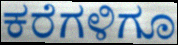
ಕರೆಗಳಿಗೂ